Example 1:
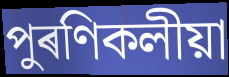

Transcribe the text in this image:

পুৰণিকলীয়া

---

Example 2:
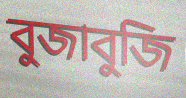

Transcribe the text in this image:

বুজাবুজি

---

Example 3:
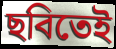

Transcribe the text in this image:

ছবিতেই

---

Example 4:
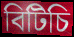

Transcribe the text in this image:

বিটিচি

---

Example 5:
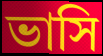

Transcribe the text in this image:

ভাসি